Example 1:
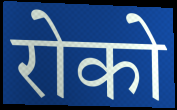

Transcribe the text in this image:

रोको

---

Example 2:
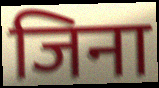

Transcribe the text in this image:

जिना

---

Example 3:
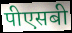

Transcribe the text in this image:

पीएसबी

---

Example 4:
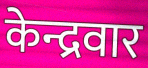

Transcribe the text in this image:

केन्‍द्रवार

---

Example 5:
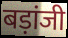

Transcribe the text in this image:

बड़ांजी